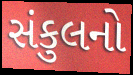
સંકુલનો